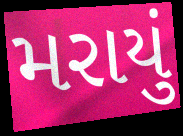
મરાયું